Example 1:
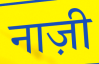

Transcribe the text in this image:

नाज़ी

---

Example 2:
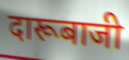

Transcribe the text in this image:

दारूबाजी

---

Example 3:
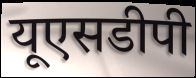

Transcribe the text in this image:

यूएसडीपी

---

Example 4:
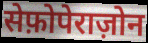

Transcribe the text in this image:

सेफ़ोपेराज़ोन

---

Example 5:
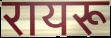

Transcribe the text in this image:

रायरू